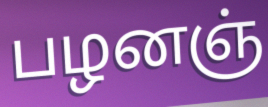
பழனஞ்